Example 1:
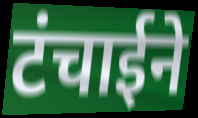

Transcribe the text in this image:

टंचाईने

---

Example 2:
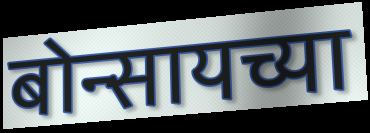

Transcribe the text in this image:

बोन्सायच्या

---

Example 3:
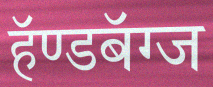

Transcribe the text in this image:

हॅण्डबॅग्ज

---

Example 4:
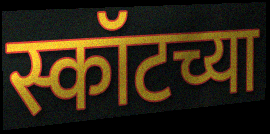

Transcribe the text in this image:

स्कॉटच्या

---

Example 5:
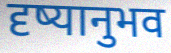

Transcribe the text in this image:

दृष्यानुभव